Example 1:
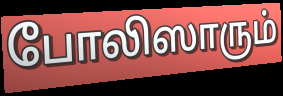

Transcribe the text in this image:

போலிஸாரும்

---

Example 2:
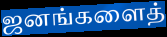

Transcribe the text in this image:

ஜனங்களைத்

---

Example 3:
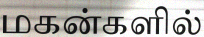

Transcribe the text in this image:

மகன்களில்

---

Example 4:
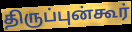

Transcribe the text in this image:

திருப்புன்கூர்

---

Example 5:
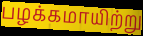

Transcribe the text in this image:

பழக்கமாயிற்று